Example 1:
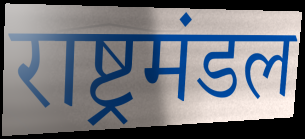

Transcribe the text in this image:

राष्ट्रमंडल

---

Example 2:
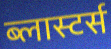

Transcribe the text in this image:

ब्लास्टर्स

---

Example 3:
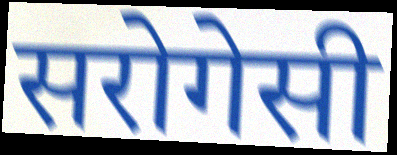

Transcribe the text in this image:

सरोगेसी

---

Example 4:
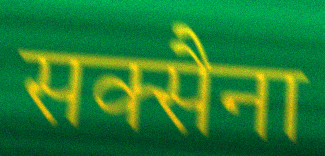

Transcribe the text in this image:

सक्सैना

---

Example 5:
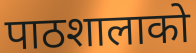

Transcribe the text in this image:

पाठशालाको